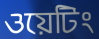
ওয়েটিং